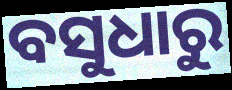
ବସୁଧାରୁ